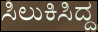
ಸಿಲುಕಿಸಿದ್ದ